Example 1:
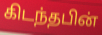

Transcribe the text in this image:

கிடந்தபின்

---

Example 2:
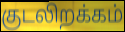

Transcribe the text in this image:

குடலிறக்கம்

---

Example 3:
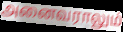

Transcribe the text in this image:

அனைவராலும்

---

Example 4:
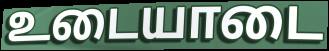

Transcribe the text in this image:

உடையாடை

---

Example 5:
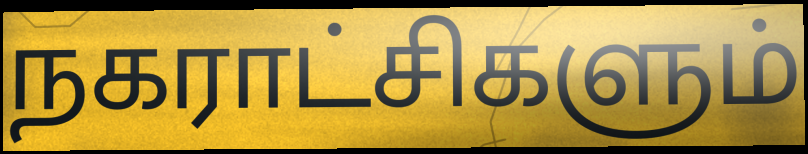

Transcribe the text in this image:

நகராட்சிகளும்